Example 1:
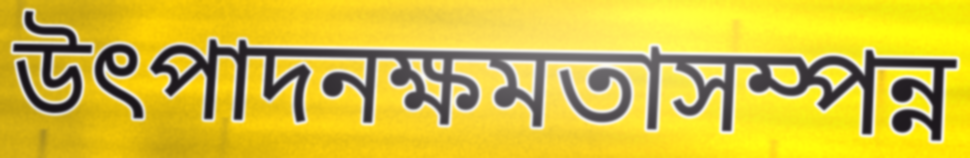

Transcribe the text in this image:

উৎপাদনক্ষমতাসম্পন্ন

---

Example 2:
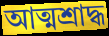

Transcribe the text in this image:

আত্মশ্রাদ্ধ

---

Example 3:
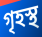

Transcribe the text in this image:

গৃহস্থ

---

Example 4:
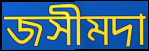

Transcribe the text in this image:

জসীমদা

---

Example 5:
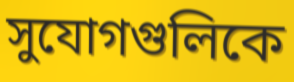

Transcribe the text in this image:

সুযোগগুলিকে